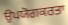
ਉਪਯੋਗਕਰਤਾ